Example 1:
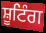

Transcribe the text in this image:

ਸ਼ੂਟਿੰਗ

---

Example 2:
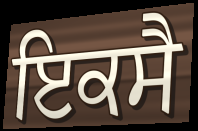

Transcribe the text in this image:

ਇਕਸੈ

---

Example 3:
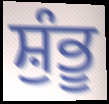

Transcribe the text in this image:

ਸ਼ੁੰਭੂ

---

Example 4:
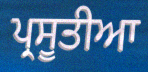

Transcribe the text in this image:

ਪ੍ਰਸੂਤੀਆ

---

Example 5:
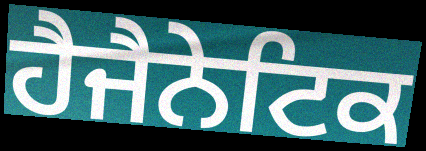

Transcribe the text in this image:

ਹੈਜੈਨੇਟਿਕ